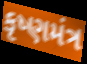
કૃષ્ણમંત્ર